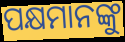
ପକ୍ଷମାନଙ୍କୁ